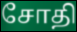
சோதி